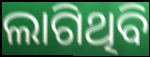
ଲାଗିଥିବି